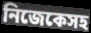
নিজেকেসহ